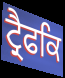
ਟ੍ਰੈਫਕਿ